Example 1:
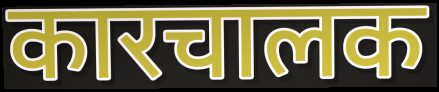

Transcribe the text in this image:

कारचालक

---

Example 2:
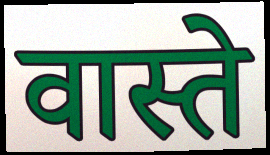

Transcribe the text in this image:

वास्ते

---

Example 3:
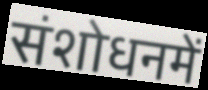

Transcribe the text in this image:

संशोधनमें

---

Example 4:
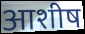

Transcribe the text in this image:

आशीष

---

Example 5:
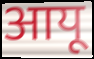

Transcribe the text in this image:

आयू